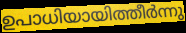
ഉപാധിയായിത്തീർന്നു